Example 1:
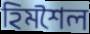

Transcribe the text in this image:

হিমশৈল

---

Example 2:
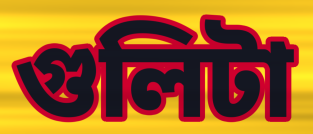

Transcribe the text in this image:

গুলিটা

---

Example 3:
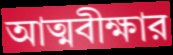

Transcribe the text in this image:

আত্মবীক্ষার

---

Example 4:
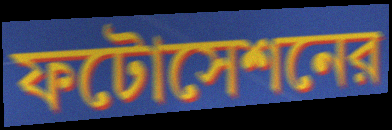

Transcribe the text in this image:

ফটোসেশনের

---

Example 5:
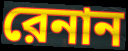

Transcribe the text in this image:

রেনান